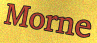
Morne